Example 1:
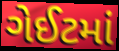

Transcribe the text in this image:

ગેઈટમાં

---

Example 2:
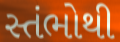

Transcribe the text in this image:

સ્તંભોથી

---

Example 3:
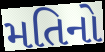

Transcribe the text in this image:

મતિનો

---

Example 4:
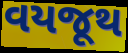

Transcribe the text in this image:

વયજૂથ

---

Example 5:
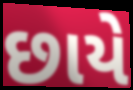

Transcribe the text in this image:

છાયે